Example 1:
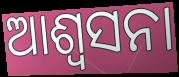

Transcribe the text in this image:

ଆଶ୍ୱସନା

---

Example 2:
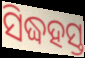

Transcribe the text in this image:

ସିଦ୍ଧହସ୍ତ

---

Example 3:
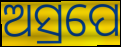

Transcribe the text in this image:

ଅସ୍ରପେ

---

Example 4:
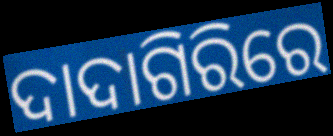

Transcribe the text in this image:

ଦାଦାଗିରିରେ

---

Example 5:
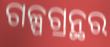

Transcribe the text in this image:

ଗଳ୍ପଗ୍ରନ୍ଥର